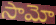
సామో